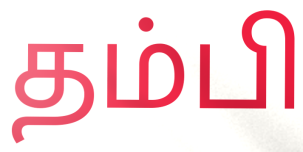
தம்பி